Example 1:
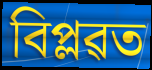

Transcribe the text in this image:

বিপ্লৱত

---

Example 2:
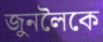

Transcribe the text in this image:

জুনলৈকে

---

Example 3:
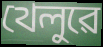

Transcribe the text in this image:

থেলুৱে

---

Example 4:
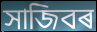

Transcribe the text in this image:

সাজিবৰ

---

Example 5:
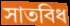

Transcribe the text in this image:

সাতবিধ